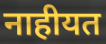
नाहीयत